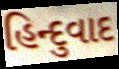
હિન્દુવાદ